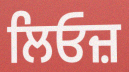
ਲਿਓਜ਼